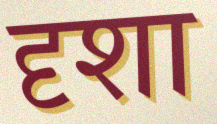
दृशा